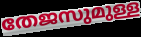
തേജസുമുള്ള